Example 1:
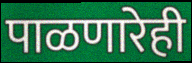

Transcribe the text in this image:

पाळणारेही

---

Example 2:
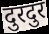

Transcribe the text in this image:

दुरदुर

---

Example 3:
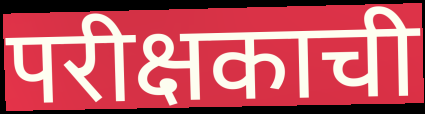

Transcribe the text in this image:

परीक्षकाची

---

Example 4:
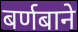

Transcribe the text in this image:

बर्णबाने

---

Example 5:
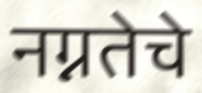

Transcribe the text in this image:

नग्नतेचे